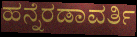
ಹನ್ನೆರಡಾವರ್ತಿ